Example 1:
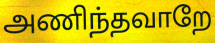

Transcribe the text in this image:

அணிந்தவாறே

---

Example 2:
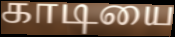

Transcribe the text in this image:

காடியை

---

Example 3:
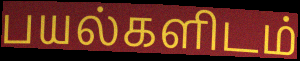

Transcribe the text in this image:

பயல்களிடம்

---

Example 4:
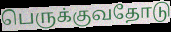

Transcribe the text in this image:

பெருக்குவதோடு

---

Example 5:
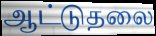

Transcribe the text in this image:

ஆட்டுதலை